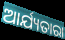
ଆର୍ଯ୍ୟତାରା